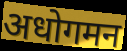
अधोगमन